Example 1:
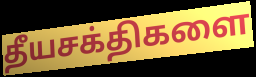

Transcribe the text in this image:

தீயசக்திகளை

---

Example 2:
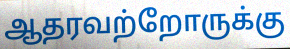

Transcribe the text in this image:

ஆதரவற்றோருக்கு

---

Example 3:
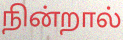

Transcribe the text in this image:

நின்றால்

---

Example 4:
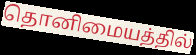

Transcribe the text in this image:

தொனிமையத்தில்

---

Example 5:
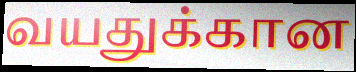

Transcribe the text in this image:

வயதுக்கான